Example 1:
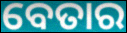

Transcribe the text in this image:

ବେତାର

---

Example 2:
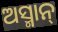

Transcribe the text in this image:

ଅସ୍ମାନ୍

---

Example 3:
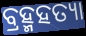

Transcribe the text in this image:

ବ୍ରହ୍ମହତ୍ୟା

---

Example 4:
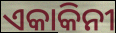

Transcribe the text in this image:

ଏକାକିନୀ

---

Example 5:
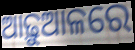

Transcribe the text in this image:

ଆଢ଼ୁଆଳରେ